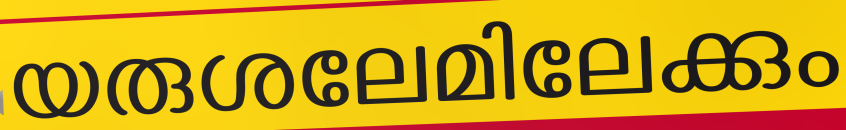
യരുശലേമിലേക്കും